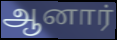
ஆனார்